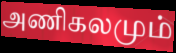
அணிகலமும்